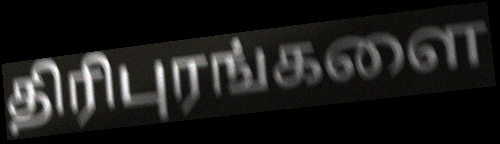
திரிபுரங்களை